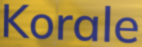
Korale